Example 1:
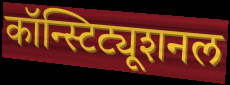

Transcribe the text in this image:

कॉन्स्टिट्यूशनल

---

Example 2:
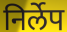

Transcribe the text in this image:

निर्लेप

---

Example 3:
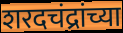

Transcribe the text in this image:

शरदचंद्रांच्या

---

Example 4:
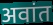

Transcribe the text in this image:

अवांत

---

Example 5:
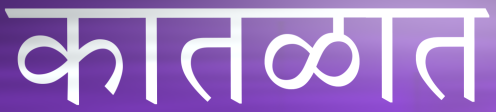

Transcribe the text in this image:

कातळात